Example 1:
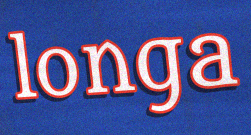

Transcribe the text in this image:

longa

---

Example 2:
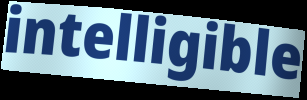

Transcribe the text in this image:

intelligible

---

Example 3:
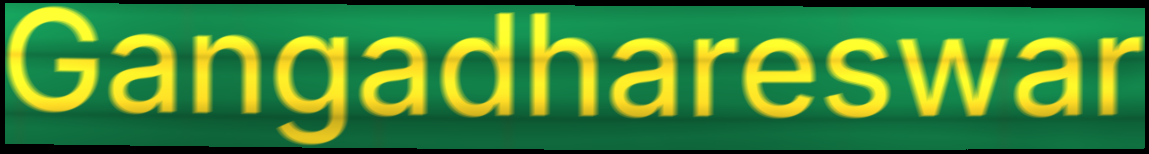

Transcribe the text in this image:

Gangadhareswar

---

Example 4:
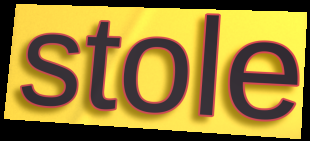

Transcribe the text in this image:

stole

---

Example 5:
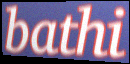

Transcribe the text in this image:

bathi